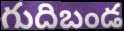
గుదిబండ